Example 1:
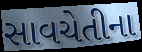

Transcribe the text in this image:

સાવચેતીના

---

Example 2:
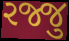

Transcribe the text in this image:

રજ્જુ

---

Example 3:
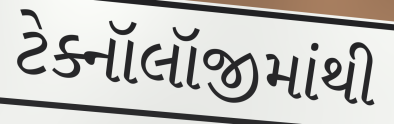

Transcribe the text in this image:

ટેક્નૉલૉજીમાંથી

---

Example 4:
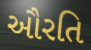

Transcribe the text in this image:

ઔરતિ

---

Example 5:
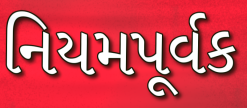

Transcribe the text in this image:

નિયમપૂર્વક